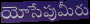
యోసేపుమీరు